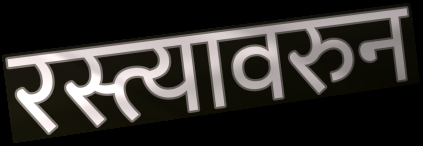
रस्त्यावरुन